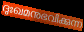
ദുഃഖമനുഭവിക്കുന്ന